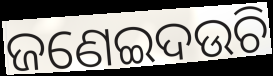
ଜଣେଇଦଉଚି